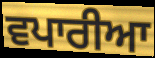
ਵਪਾਰੀਆ